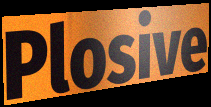
Plosive